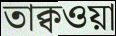
তাক্বওয়া